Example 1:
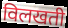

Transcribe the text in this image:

विलखती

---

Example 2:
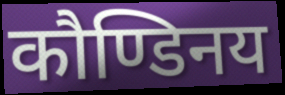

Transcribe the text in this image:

कौण्डिनय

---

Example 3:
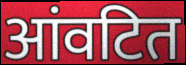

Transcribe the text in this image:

आंवटित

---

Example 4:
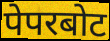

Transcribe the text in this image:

पेपरबोट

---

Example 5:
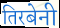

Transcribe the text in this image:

तिरबेनी